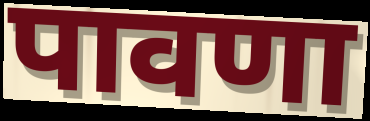
पावणा